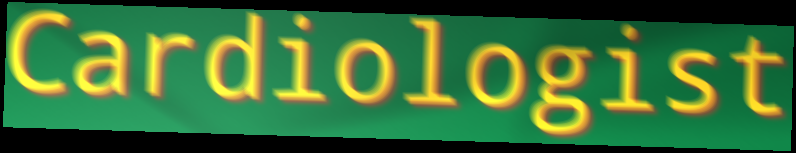
Cardiologist